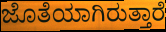
ಜೊತೆಯಾಗಿರುತ್ತಾರೆ